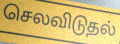
செலவிடுதல்